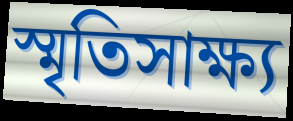
স্মৃতিসাক্ষ্য